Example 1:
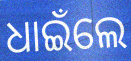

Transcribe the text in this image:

ଧାଇଁଲେ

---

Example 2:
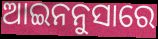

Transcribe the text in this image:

ଆଇନନୁସାରେ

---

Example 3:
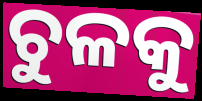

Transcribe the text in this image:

ଚୁଳକୁ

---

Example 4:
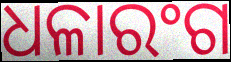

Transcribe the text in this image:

ଧଳାରଂଗ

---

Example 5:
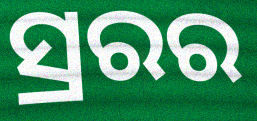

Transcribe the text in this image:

ସ୍ରରର